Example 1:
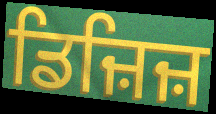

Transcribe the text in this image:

ਡਿਜ਼ਿਜ਼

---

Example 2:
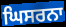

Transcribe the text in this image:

ਘਿਸਰਨਾ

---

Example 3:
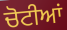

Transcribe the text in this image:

ਚੋਟੀਆਂ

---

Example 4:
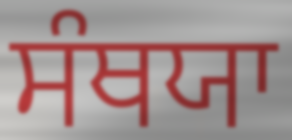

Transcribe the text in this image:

ਸੰਥਯਾ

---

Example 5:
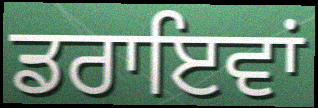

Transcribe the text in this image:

ਡਰਾਇਵਾਂ